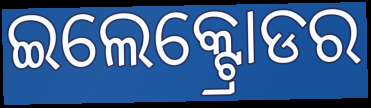
ଇଲେକ୍ଟ୍ରୋଡର